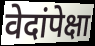
वेदांपेक्षा